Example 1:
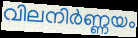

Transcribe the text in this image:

വിലനിർണ്ണയം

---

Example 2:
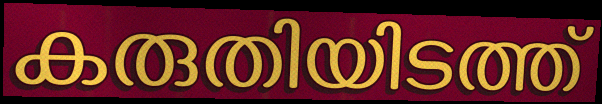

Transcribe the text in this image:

കരുതിയിടത്ത്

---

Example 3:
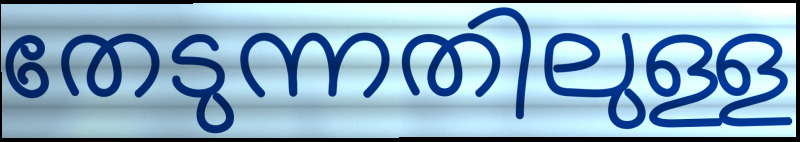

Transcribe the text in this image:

തേടുന്നതിലുള്ള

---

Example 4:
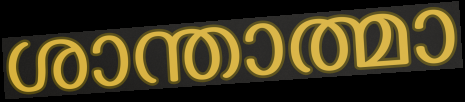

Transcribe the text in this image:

ശാന്താത്മാ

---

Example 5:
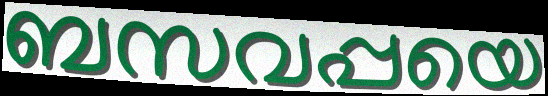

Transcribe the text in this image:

ബസവപ്പയെ